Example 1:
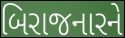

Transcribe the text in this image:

બિરાજનારને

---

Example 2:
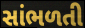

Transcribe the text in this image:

સાંભળતી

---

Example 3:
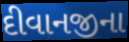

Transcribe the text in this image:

દીવાનજીના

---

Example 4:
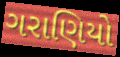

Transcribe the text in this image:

ગરાણિયો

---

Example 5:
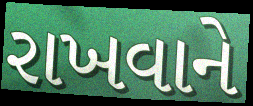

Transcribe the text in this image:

રાખવાને